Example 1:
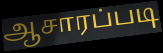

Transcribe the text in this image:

ஆசாரப்படி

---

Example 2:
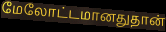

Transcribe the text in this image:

மேலோட்டமானதுதான்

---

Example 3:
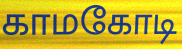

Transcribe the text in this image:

காமகோடி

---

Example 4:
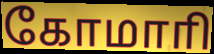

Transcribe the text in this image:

கோமாரி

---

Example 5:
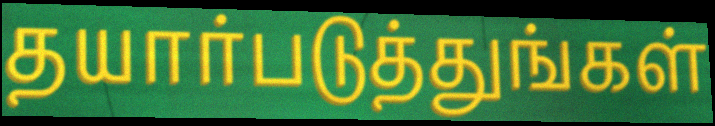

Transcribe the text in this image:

தயார்படுத்துங்கள்